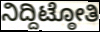
ನಿದ್ದಿಟ್ಠೋತಿ